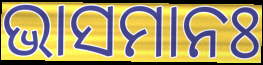
ଭାସମାନଃ